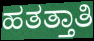
ಹತತ್ತಾತಿ